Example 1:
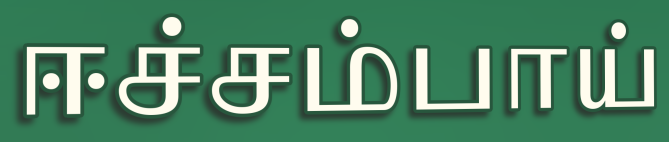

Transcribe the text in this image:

ஈச்சம்பாய்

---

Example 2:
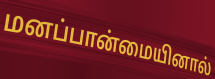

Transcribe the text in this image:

மனப்பான்மையினால்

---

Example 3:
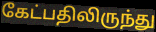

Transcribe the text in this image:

கேட்பதிலிருந்து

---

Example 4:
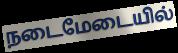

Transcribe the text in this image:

நடைமேடையில்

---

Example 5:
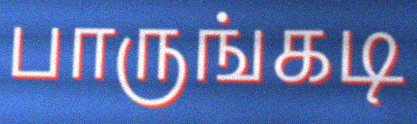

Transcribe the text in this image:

பாருங்கடி